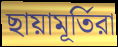
ছায়ামূর্তিরা